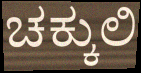
ಚಕ್ಕುಲಿ